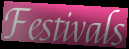
Festivals